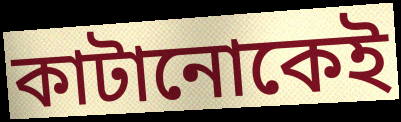
কাটানোকেই